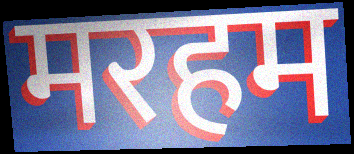
मरहम